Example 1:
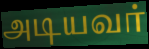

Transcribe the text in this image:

அடியவர்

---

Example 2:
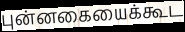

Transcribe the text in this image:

புன்னகையைக்கூட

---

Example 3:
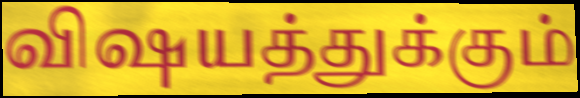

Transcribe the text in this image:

விஷயத்துக்கும்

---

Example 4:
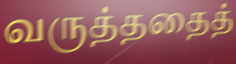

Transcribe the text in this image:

வருத்ததைத்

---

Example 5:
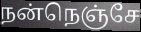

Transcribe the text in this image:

நன்நெஞ்சே